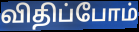
விதிப்போம்